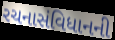
રચનાસંવિધાનની